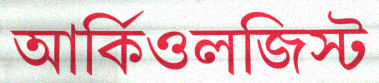
আর্কিওলজিস্ট